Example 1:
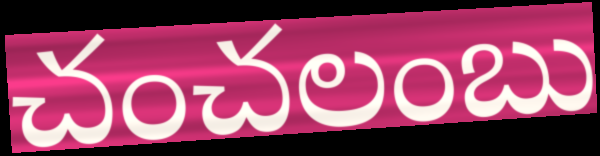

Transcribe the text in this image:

చంచలంబు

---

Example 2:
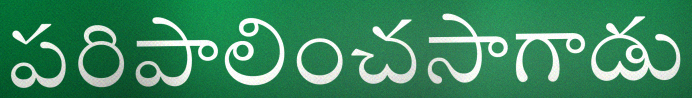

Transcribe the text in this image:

పరిపాలించసాగాడు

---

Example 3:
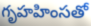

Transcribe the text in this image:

గృహహింసతో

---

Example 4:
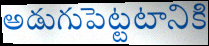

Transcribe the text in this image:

అడుగుపెట్టటానికి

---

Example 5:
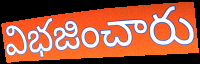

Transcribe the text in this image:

విభజించారు